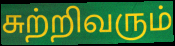
சுற்றிவரும்